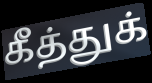
கீத்துக்